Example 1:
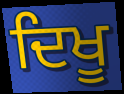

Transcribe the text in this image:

ਦਿਖੂ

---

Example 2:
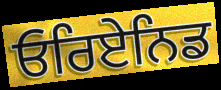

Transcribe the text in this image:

ਓਰਿਏਨਿਡ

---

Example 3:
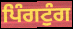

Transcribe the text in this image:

ਪਿੰਗਟੁੰਗ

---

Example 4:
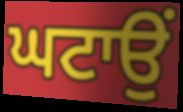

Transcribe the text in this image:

ਘਟਾਉਂ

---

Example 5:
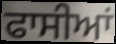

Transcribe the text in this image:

ਫਾਸੀਆਂ